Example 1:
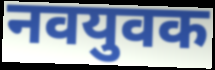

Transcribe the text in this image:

नवयुवक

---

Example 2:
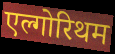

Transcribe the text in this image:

एल्गोरिथम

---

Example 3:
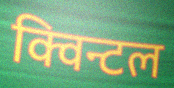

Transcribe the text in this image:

क्विन्टल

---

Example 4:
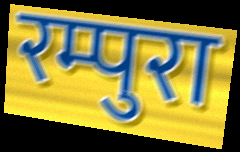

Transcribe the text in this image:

रम्पुरा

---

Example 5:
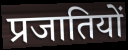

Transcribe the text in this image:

प्रजातियों